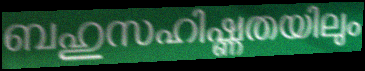
ബഹുസഹിഷ്ണതയിലും